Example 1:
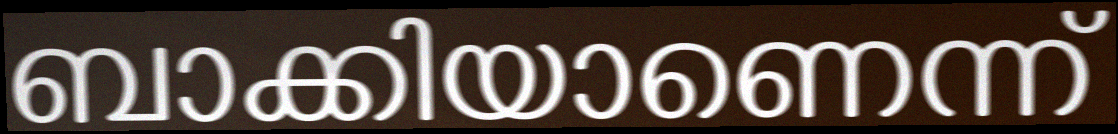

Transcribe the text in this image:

ബാക്കിയാണെന്ന്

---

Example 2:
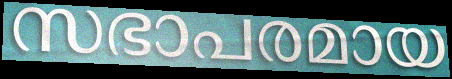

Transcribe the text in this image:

സഭാപരമായ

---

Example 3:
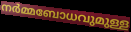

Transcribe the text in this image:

നർമ്മബോധവുമുള്ള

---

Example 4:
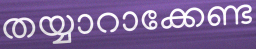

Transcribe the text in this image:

തയ്യാറാക്കേണ്ട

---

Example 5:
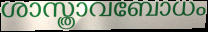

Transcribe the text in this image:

ശാസ്ത്രാവബോധം